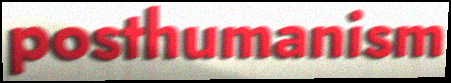
posthumanism